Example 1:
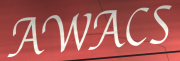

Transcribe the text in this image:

AWACS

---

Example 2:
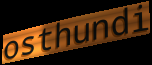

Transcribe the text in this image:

osthundi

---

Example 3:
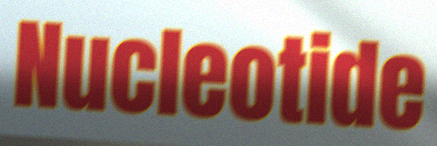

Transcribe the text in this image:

Nucleotide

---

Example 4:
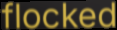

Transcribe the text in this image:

flocked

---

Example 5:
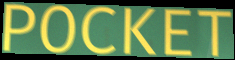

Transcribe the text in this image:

POCKET